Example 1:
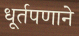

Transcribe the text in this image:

धूर्तपणाने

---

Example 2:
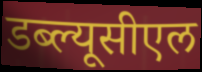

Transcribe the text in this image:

डब्ल्यूसीएल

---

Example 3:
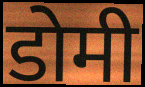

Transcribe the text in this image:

डोमी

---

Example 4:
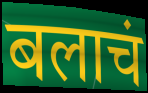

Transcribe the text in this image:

बलाचं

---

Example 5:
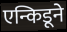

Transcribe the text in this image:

एन्किडूने